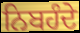
ਨਿਬਹੰਦੇ